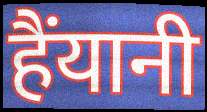
हैंयानी